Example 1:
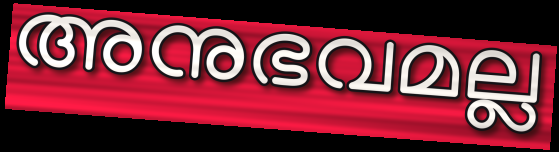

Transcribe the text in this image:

അനുഭവമല്ല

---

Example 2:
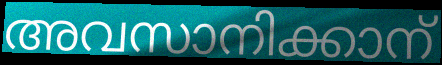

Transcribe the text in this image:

അവസാനിക്കാന്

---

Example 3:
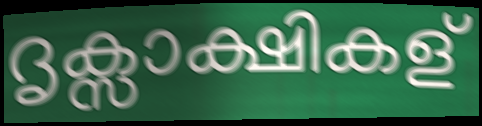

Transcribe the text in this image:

ദൃക്സാക്ഷികള്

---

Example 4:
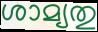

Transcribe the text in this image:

ശാമ്യതു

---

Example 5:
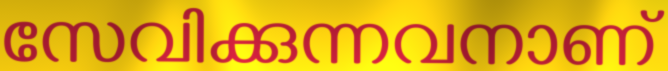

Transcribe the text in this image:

സേവിക്കുന്നവനാണ്